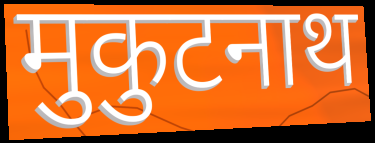
मुकुटनाथ